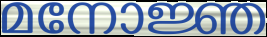
മനോജ്ഞ